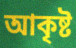
আকৃষ্ট